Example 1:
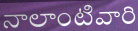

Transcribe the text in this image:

నాలాంటివారి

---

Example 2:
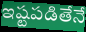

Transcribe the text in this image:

ఇష్టపడితేనే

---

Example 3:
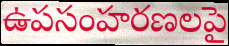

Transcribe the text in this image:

ఉపసంహరణలపై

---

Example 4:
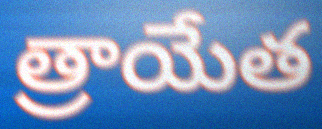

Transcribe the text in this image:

త్రాయేత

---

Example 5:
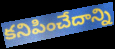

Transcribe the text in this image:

కనిపించేదాన్ని